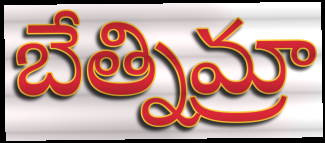
బేత్నిమ్రా